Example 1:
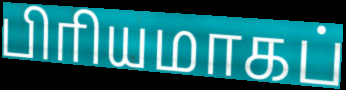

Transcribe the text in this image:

பிரியமாகப்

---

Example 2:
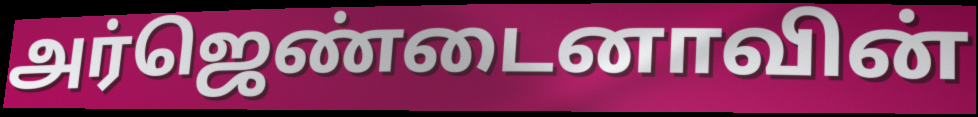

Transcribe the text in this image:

அர்ஜெண்டைனாவின்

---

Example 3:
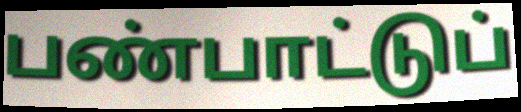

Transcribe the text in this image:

பண்பாட்டுப்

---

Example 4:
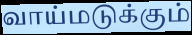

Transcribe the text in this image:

வாய்மடுக்கும்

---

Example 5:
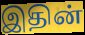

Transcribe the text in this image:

இதின்